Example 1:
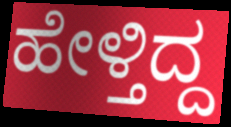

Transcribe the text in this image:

ಹೇಳ್ತಿದ್ದ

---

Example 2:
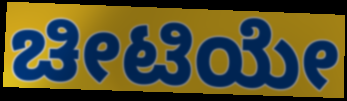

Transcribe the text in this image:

ಚೀಟಿಯೇ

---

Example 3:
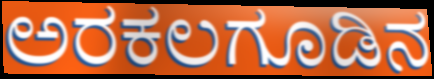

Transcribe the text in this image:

ಅರಕಲಗೂಡಿನ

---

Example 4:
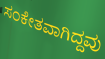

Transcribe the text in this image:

ಸಂಕೇತವಾಗಿದ್ದವು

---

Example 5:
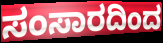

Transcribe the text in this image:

ಸಂಸಾರದಿಂದ